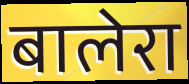
बालेरा